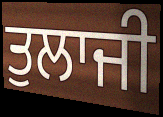
ਤੁਲਾਜੀ